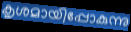
കൃശമായിപ്പോകുന്നു